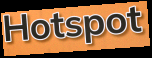
Hotspot